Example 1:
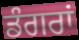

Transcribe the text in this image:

ਡੰਗਰਾਂ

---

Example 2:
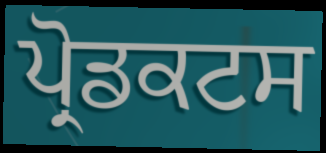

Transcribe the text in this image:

ਪ੍ਰੋਡਕਟਸ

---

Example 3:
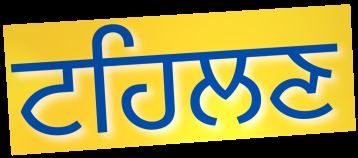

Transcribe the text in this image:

ਟਹਿਲਣ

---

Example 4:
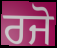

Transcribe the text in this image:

ਰਜੋ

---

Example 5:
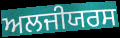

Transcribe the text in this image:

ਅਲਜੀਯਰਸ